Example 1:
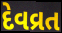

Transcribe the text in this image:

દેવવ્રત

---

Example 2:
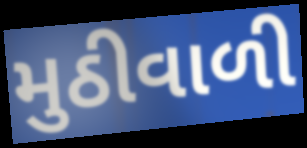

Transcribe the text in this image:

મુઠીવાળી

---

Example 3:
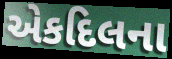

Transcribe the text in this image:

એકદિલના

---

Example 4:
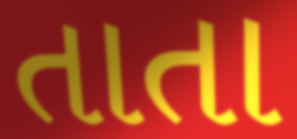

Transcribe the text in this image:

તાતા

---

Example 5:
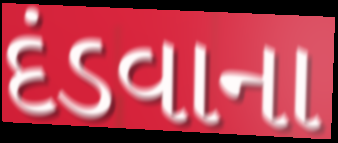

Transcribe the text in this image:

દંડવાના